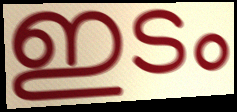
ഇടം